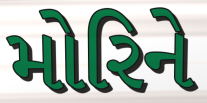
મોરિને